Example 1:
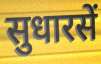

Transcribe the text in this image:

सुधारसें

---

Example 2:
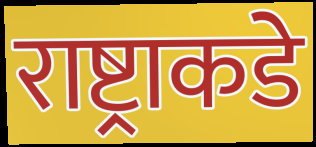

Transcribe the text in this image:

राष्ट्राकडे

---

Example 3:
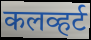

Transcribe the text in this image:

कलव्हर्ट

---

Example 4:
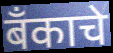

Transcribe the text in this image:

बँकाचे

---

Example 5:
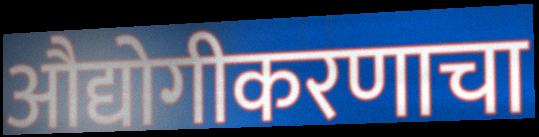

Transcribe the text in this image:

औद्योगीकरणाचा